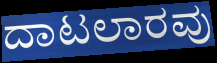
ದಾಟಲಾರವು